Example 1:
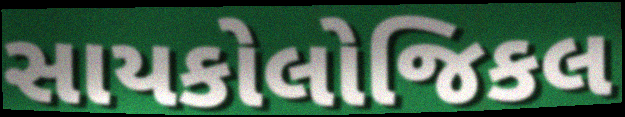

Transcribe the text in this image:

સાયકોલોજિકલ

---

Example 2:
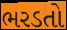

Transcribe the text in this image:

ભરડતો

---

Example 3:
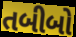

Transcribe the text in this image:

તબીબો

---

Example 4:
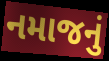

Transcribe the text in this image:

નમાજનું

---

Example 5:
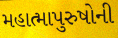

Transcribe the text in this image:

મહાત્માપુરુષોની